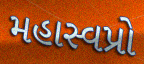
મહાસ્વપ્રો